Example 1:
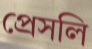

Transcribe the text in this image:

প্রেসলি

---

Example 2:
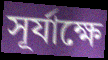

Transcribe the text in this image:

সূর্যাক্ষে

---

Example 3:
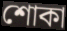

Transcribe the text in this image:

শোকা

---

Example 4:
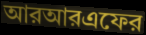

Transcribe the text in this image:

আরআরএফের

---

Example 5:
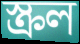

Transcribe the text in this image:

স্ক্রল